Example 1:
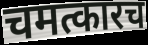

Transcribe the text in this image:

चमत्कारच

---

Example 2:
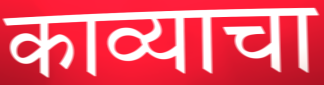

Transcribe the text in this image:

काव्याचा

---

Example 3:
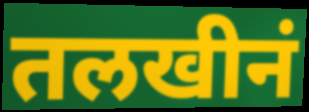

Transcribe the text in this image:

तलखीनं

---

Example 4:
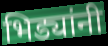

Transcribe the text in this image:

भिड्यांनी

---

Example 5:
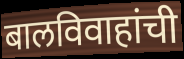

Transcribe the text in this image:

बालविवाहांची